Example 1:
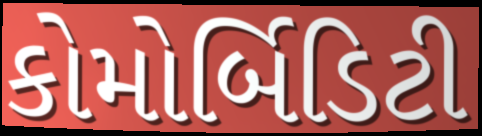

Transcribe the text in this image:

કોમોર્બિડિટી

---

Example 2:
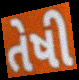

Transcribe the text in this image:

તેષી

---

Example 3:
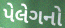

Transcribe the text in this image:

પેલેગનો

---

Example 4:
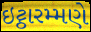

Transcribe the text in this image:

ઇટ્ઠારમ્મણે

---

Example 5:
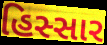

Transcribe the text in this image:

હિસ્સાર